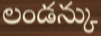
లండన్కు